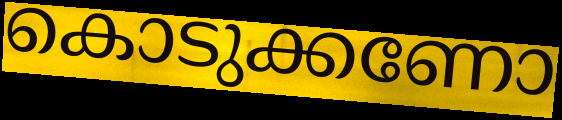
കൊടുക്കണോ